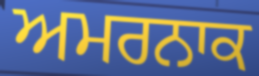
ਅਮਰਨਾਕ